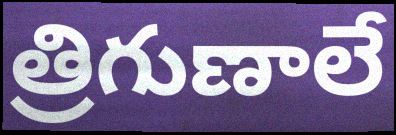
త్రిగుణాలే